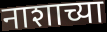
नाशाच्या